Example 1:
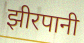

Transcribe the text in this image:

झीरपानी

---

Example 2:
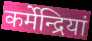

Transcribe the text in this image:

कर्मेन्द्रियां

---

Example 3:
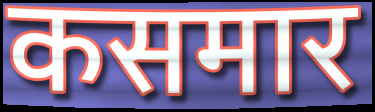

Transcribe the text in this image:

कसमार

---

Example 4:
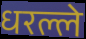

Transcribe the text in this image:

धरल्ले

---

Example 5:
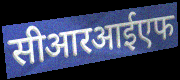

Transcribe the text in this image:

सीआरआईएफ